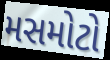
મસમોટો